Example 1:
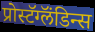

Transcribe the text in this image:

प्रोस्टॅग्लॅंडिन्स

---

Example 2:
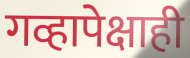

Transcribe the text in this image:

गव्हापेक्षाही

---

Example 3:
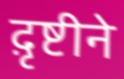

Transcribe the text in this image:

द़ृष्टीने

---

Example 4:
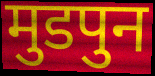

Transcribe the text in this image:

मुडपुन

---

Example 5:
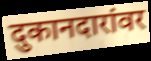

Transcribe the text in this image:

दुकानदारांवर